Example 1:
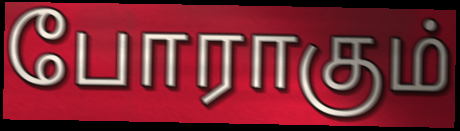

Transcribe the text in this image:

போராகும்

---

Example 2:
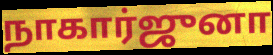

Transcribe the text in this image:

நாகார்ஜுனா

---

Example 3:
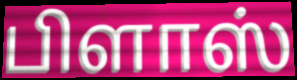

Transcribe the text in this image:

பிளாஸ்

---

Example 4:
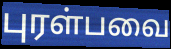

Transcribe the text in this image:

புரள்பவை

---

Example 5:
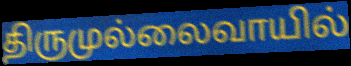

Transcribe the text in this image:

திருமுல்லைவாயில்